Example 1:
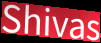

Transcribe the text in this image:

Shivas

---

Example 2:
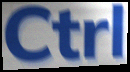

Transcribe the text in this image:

Ctrl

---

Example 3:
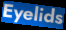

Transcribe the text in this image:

Eyelids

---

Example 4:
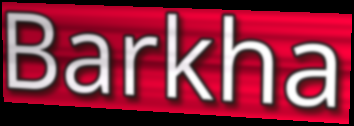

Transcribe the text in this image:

Barkha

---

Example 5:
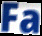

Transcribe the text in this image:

Fa